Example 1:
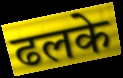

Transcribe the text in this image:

ढलके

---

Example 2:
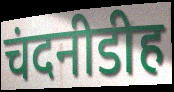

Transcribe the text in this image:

चंदनीडीह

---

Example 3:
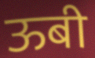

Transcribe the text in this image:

ऊबी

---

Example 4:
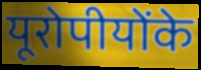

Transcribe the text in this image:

यूरोपीयोंके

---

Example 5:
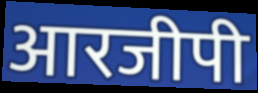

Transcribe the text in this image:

आरजीपी